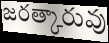
జరత్కారువు